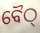
ବୈଠ୍